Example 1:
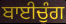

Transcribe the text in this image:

ਬਾਈਚੁੰਗ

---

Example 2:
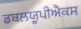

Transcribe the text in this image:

ਡਬਲਯੂਪੀਐਕਸ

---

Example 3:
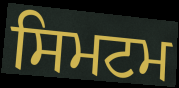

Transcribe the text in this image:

ਸਿਮਟਮ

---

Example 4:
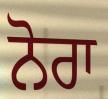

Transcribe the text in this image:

ਨੋਰਾ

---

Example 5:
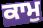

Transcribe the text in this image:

ਕਾਮੁ